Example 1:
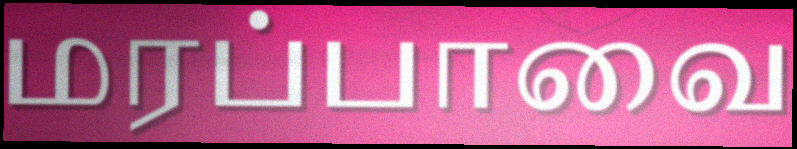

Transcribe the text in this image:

மரப்பாவை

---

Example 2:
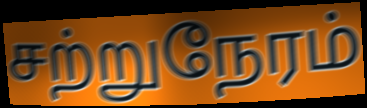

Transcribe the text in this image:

சற்றுநேரம்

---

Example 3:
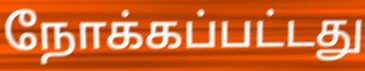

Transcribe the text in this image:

நோக்கப்பட்டது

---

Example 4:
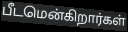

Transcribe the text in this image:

பீடமென்கிறார்கள்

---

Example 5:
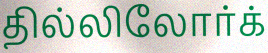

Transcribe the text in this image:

தில்லிலோர்க்